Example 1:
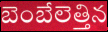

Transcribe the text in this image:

బెంబేలెత్తిన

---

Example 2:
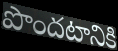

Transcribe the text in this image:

పొందటానికి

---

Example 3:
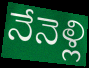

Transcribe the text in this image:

నేనెళ్లి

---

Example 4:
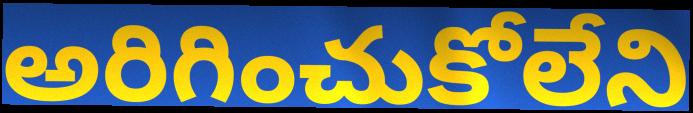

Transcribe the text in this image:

అరిగించుకోలేని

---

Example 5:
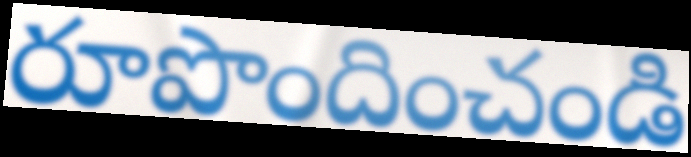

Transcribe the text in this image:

రూపొందించండి